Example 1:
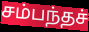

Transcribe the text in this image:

சம்பந்தச்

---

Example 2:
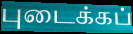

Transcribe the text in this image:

புடைக்கப்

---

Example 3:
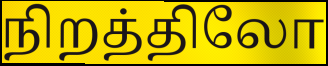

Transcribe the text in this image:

நிறத்திலோ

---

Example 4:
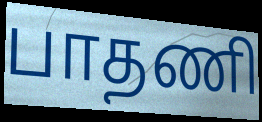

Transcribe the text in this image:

பாதணி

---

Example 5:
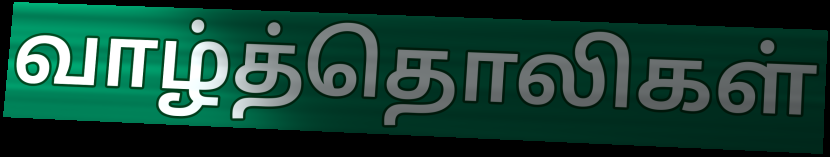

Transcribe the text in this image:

வாழ்த்தொலிகள்